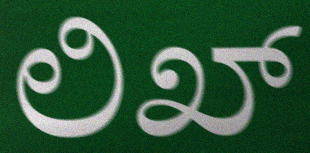
ಲಿಖ್